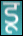
डू